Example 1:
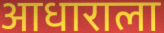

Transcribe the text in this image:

आधाराला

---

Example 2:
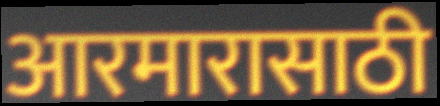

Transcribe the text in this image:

आरमारासाठी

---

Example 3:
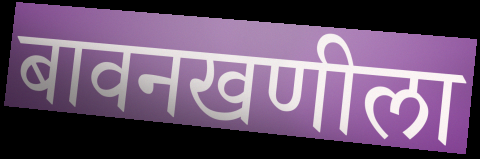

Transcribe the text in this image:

बावनखणीला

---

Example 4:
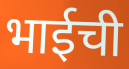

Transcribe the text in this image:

भाईची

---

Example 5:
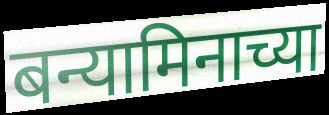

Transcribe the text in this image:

बन्यामिनाच्या